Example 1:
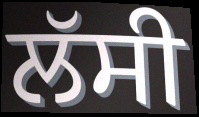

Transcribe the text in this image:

ਲੱਸੀ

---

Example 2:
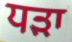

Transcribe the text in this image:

ਧੜਾ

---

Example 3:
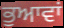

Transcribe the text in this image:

ਭੁਆਵਾਂ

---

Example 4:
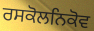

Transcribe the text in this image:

ਰਸਕੋਲਨਿਕੋਵ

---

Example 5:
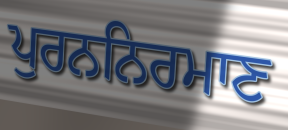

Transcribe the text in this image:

ਪੁਰਨਨਿਰਮਾਣ